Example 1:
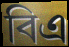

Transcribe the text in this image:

বিএ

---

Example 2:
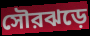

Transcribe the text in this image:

সৌরঝড়ে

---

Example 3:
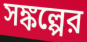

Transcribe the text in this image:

সঙ্কল্পের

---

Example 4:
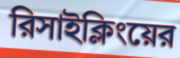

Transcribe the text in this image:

রিসাইক্লিংয়ের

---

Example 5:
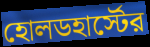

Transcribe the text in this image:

হোলডহার্স্টের